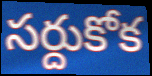
సర్దుకోక